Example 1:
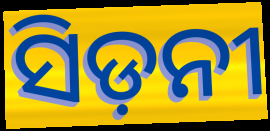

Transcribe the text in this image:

ସିଡ଼ନୀ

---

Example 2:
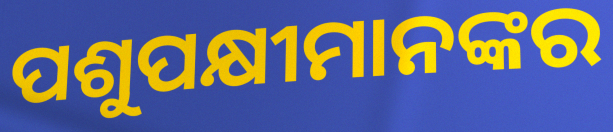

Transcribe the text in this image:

ପଶୁପକ୍ଷୀମାନଙ୍କର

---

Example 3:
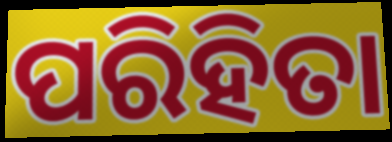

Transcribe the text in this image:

ପରିହିତା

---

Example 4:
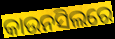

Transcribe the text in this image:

କାଉନସିଲରେ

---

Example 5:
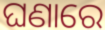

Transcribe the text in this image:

ଘଣାରେ